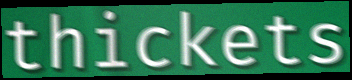
thickets